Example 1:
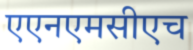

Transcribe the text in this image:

एएनएमसीएच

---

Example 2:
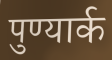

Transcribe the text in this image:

पुण्यार्क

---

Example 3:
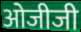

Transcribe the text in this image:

ओजीजी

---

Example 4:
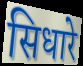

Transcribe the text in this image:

सिधारे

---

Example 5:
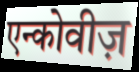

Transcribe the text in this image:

एन्कोवीज़